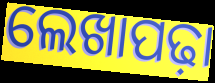
ଲେଖାପଢ଼ା